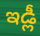
ఇడ్లీ